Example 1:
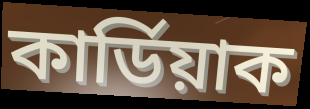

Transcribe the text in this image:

কাৰ্ডিয়াক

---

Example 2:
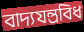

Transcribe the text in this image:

বাদ্যযন্ত্ৰবিধ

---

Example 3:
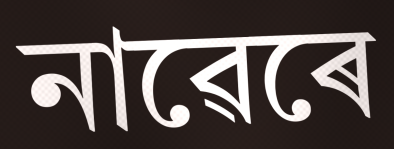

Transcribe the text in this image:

নাৱেৰে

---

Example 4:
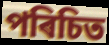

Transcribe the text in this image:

পৰিচিত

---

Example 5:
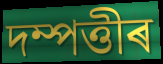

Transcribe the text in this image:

দম্পত্তীৰ